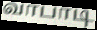
வாபாடி